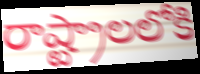
రాష్ట్రాలలోకి